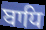
ਬਾਧਿ